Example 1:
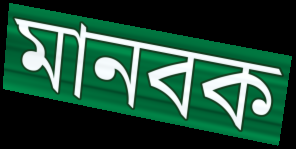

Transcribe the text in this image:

মানবক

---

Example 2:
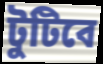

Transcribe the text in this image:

টুটিবে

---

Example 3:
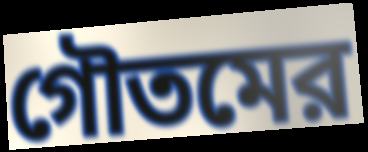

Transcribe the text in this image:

গৌতমের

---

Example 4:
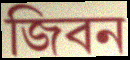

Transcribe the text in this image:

জিবন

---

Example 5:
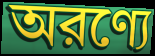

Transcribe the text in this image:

অরণ্যে